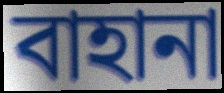
বাহানা